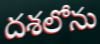
దశలోను